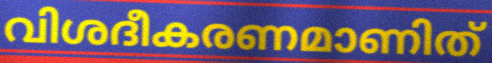
വിശദീകരണമാണിത്